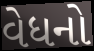
વેધનો